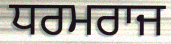
ਧਰਮਰਾਜ